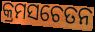
କ୍ରମସଚେତନ